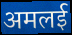
अमलई